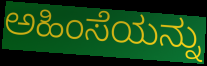
ಅಹಿಂಸೆಯನ್ನು